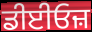
ਡੀਈਓਜ਼